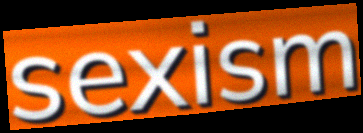
sexism